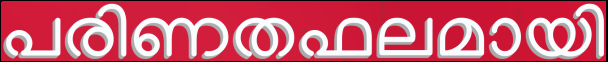
പരിണതഫലമായി